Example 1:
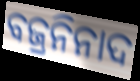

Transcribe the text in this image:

ବଜ୍ରନିନାଦ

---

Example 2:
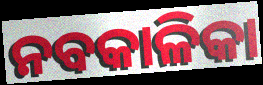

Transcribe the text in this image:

ନବକାଳିକା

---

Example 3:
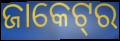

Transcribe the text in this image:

ଜାକେଟ୍‌ର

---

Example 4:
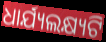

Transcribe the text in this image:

ଧାର୍ଯ୍ୟଲକ୍ଷ୍ୟଟି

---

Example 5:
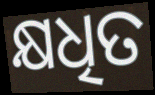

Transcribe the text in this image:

କ୍ଷଧିତ